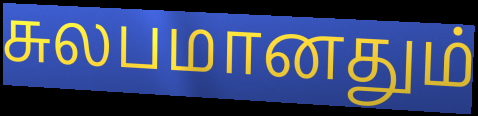
சுலபமானதும்